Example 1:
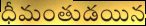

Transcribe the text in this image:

ధీమంతుడయిన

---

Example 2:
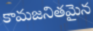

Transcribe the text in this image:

కామజనితమైన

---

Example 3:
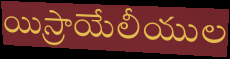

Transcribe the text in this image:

యిస్రాయేలీయుల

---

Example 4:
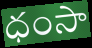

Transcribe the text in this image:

ధంసా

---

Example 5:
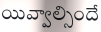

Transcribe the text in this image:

యివ్వాల్సిందే